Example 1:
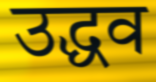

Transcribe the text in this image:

उद्धव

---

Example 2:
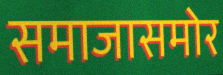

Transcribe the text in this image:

समाजासमोर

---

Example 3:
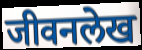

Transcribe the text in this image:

जीवनलेख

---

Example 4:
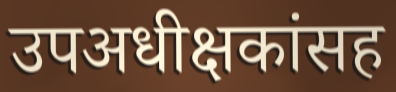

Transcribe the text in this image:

उपअधीक्षकांसह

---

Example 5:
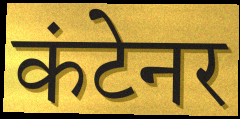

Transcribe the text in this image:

कंटेनर